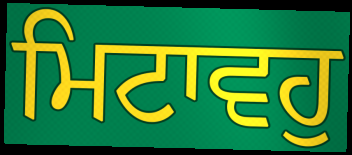
ਮਿਟਾਵਹੁ